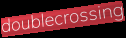
doublecrossing